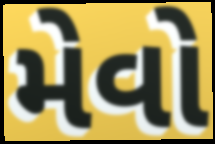
મેવો